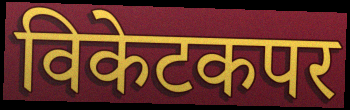
विकेटकपर